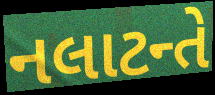
નલાટન્તે